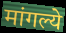
मांगल्ये